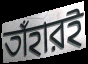
তাঁহারই